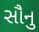
સૌનુ